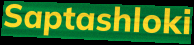
Saptashloki